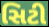
સિટી